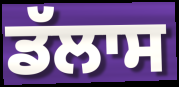
ਡੱਲਾਸ